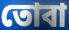
তোবা